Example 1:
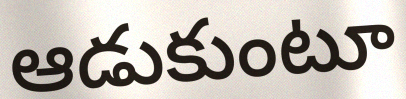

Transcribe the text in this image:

ఆడుకుంటూ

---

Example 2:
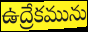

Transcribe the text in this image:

ఉద్రేకమును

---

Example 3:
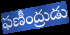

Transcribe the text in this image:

ఫణీంద్రుడు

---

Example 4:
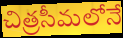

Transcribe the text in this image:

చిత్రసీమలోనే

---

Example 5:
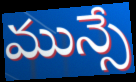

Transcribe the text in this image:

మున్సే